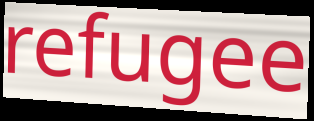
refugee